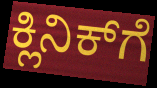
ಕ್ಲಿನಿಕ್‍ಗೆ